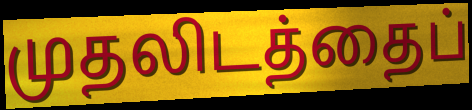
முதலிடத்தைப்